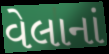
વેલાનાં